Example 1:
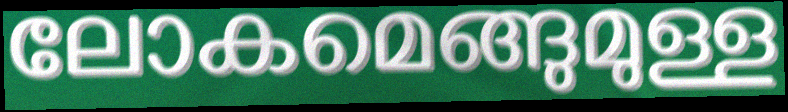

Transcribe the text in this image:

ലോകമെങ്ങുമുള്ള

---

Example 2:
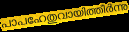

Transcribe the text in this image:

പാപഹേതുവായിത്തീർന്നു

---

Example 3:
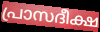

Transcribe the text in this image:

പ്രാസദീക്ഷ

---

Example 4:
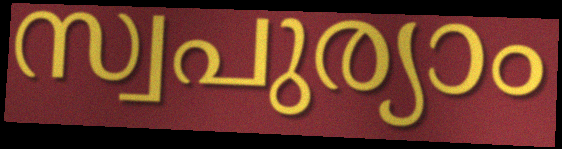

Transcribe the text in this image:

സ്വപുര്യാം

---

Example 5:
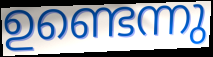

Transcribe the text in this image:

ഉണ്ടെന്നു